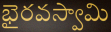
భైరవస్వామి